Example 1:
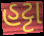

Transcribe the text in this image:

હટ્ટા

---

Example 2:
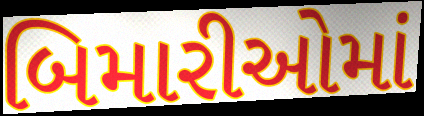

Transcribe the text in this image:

બિમારીઓમાં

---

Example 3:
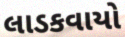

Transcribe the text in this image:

લાડકવાયો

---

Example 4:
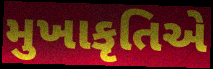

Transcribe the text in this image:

મુખાકૃતિએ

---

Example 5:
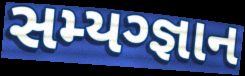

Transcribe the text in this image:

સમ્યગ્જ્ઞાન